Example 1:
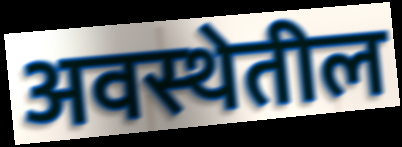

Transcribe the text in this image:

अवस्थेतील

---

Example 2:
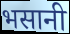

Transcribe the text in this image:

भसानी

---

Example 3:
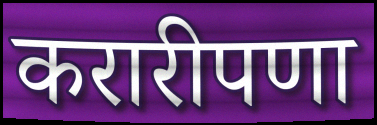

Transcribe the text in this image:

करारीपणा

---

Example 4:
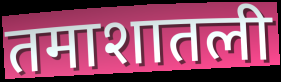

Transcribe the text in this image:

तमाशातली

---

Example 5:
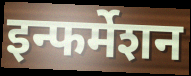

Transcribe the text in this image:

इन्फर्मेशन